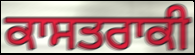
ਕਾਸਤਰਾਕੀ